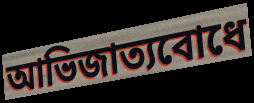
আভিজাত্যবোধে